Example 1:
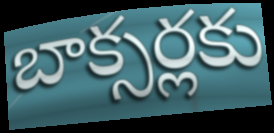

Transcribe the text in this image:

బాక్సర్లకు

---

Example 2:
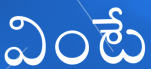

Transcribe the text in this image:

వింటే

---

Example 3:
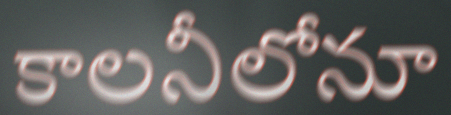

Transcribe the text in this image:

కాలనీలోనూ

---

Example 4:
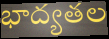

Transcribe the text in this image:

భాద్యతల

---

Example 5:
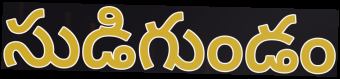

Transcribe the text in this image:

సుడిగుండం